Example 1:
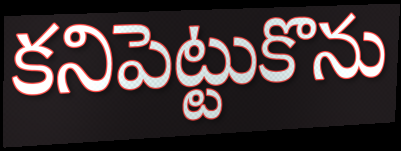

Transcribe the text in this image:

కనిపెట్టుకొను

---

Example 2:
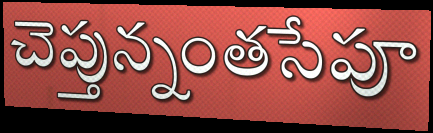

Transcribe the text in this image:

చెప్తున్నంతసేపూ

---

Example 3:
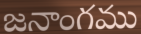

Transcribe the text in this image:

జనాంగము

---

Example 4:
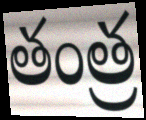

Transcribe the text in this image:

తంత్ర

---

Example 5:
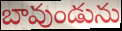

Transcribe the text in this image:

బావుండును